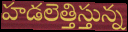
హడలెత్తిస్తున్న